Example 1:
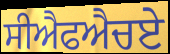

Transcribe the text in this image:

ਸੀਐਫਐਚਏ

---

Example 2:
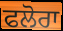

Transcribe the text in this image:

ਫਲੋਰਾ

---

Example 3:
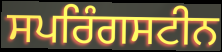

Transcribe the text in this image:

ਸਪਰਿੰਗਸਟੀਨ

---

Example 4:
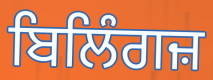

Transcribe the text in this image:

ਬਿਲਿੰਗਜ਼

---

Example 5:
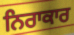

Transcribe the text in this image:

ਨਿਰਾਕਾਰ